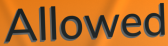
Allowed